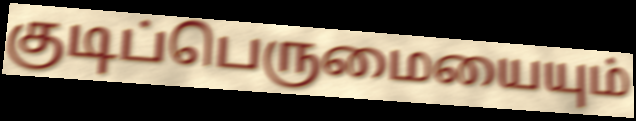
குடிப்பெருமையையும்